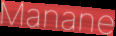
Manane